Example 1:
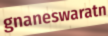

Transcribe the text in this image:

gnaneswaratn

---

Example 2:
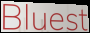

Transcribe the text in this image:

Bluest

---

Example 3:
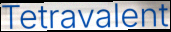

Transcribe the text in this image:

Tetravalent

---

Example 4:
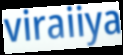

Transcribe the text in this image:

viraiiya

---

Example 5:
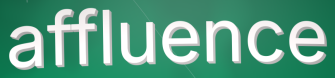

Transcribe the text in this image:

affluence